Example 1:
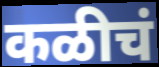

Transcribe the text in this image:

कळीचं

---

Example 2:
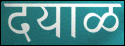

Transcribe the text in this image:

दयाळ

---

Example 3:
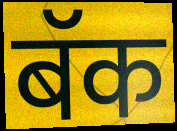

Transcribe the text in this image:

बॅक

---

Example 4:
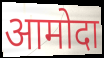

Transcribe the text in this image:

आमोदा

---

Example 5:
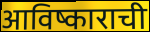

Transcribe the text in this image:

आविष्काराची